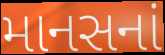
માનસનાં